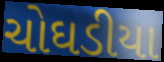
ચોઘડીયા